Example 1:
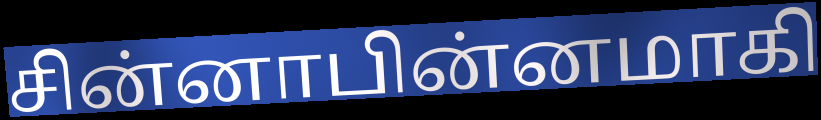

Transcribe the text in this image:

சின்னாபின்னமாகி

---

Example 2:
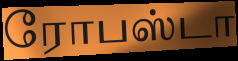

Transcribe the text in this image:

ரோபஸ்டா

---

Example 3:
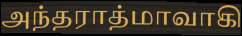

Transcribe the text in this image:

அந்தராத்மாவாகி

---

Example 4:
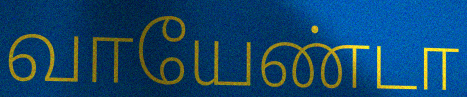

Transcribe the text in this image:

வாயேண்டா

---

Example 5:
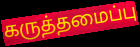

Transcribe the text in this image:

கருத்தமைப்பு